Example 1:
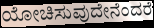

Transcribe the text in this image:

ಯೋಚಿಸುವುದೇನೆಂದರೆ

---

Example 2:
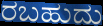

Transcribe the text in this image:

ರಬಹುದು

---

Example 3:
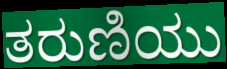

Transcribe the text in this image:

ತರುಣಿಯು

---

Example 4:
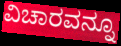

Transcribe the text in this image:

ವಿಚಾರವನ್ನೂ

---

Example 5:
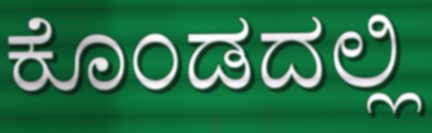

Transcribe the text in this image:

ಕೊಂಡದಲ್ಲಿ